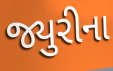
જ્યુરીના